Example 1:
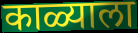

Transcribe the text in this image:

काळ्याला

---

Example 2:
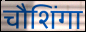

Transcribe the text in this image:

चौशिंगा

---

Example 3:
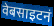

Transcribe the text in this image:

वेबसाइटनं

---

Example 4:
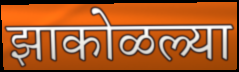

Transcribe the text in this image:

झाकोळल्या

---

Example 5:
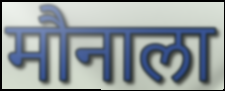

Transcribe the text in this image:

मौनाला